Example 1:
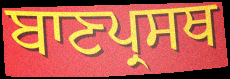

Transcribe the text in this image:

ਬਾਣਪ੍ਰਸਥ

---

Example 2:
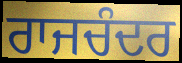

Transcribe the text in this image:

ਰਾਜਚੰਦਰ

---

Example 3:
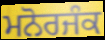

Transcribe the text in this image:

ਮਨੋਰਜੰਕ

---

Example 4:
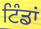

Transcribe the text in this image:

ਟਿੰਡਾਂ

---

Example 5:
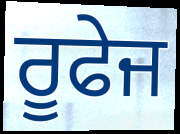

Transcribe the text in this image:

ਰੂਫੇਜ